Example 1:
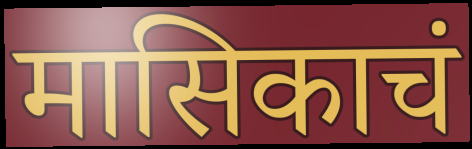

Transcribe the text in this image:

मासिकाचं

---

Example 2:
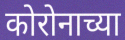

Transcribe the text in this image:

कोरोनाच्या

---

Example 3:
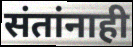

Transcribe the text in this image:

संतांनाही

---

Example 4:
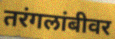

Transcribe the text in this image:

तरंगलांबीवर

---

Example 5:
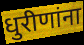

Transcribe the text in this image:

धुरीणांना